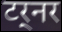
टर्नर